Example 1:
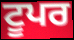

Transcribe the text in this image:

ਟੂਪਰ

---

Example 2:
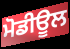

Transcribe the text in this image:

ਮੋਡੀਊਲ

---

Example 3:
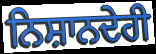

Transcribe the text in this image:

ਨਿਸ਼ਾਨਦੇਹੀ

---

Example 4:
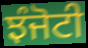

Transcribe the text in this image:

ਝੰਜੋਟੀ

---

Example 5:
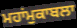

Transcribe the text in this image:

ਮਹਾਂਮੁਕਾਬਲਾ